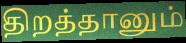
திறத்தானும்